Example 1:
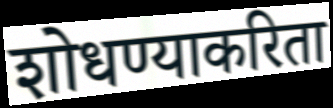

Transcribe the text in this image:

शोधण्याकरिता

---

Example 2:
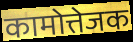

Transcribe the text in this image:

कामोत्तेजक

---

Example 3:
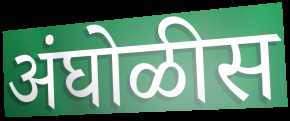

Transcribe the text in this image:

अंघोळीस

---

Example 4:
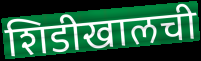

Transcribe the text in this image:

शिडीखालची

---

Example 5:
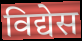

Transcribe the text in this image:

विद्येस